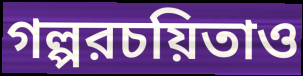
গল্পরচয়িতাও